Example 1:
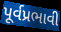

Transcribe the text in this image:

પૂર્વપ્રભાવી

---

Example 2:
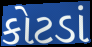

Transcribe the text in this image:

કોટડાં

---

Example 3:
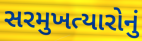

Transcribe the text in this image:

સરમુખત્યારોનું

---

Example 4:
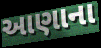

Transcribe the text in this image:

આણાના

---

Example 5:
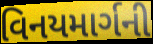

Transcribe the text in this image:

વિનયમાર્ગની